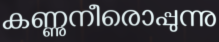
കണ്ണുനീരൊപ്പുന്നു